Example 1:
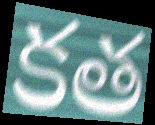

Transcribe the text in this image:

కత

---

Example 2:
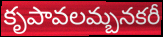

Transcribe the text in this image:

కృపావలమ్బనకరీ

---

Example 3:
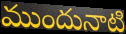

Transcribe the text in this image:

ముందునాటి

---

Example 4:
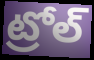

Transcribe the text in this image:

ట్రోల్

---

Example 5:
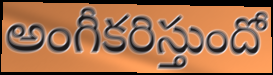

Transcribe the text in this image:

అంగీకరిస్తుందో